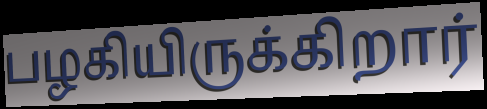
பழகியிருக்கிறார்